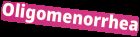
Oligomenorrhea